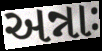
અન્નાઃ